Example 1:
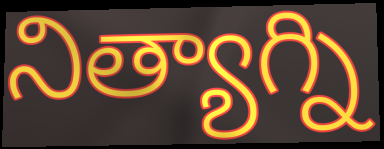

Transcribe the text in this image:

నిత్యాగ్ని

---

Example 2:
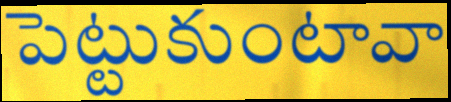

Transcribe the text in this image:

పెట్టుకుంటావా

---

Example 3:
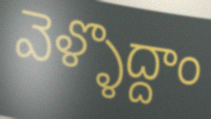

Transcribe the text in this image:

వెళ్ళొద్దాం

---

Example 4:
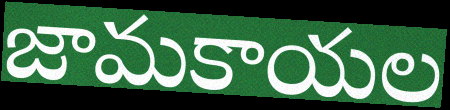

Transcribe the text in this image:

జామకాయల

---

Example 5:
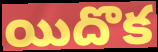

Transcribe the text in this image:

యిదొక